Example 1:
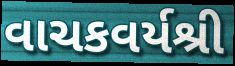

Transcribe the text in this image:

વાચકવર્યશ્રી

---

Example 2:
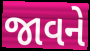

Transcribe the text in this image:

જાવને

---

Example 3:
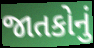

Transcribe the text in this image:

જાતકોનું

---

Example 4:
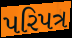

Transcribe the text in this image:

પરિપત્ર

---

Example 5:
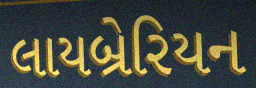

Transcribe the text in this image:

લાયબ્રેરિયન